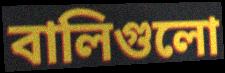
বালিগুলো